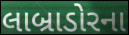
લાબ્રાડોરના